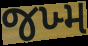
જખ્મ